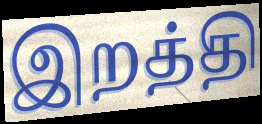
இறத்தி